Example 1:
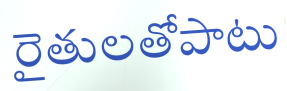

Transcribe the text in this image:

రైతులతోపాటు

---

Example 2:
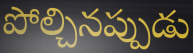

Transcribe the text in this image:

పోల్చినప్పుడు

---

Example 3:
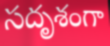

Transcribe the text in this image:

సదృశంగా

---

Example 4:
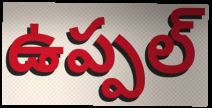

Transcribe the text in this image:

ఉప్పల్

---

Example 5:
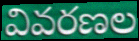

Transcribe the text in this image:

వివరణల